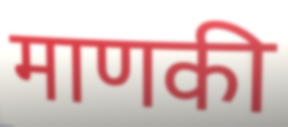
माणकी